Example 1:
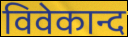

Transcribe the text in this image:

विवेकान्द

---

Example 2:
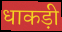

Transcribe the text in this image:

धाकड़ी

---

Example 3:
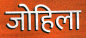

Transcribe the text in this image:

जोहिला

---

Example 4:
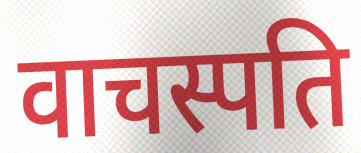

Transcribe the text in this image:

वाचस्पति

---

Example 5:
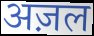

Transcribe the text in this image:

अज़ल